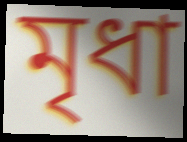
মৃধা